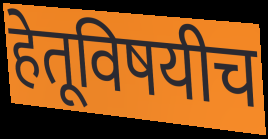
हेतूविषयीच